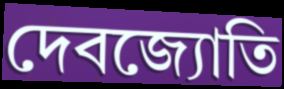
দেবজ্যোতি